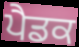
ਪੈਡਕ